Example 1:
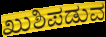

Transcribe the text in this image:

ಖುಶಿಪಡುವ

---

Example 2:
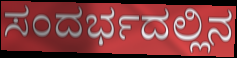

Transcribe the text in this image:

ಸಂದರ್ಭದಲ್ಲಿನ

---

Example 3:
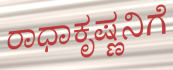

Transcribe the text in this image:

ರಾಧಾಕೃಷ್ಣನಿಗೆ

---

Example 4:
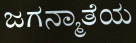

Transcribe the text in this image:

ಜಗನ್ಮಾತೆಯ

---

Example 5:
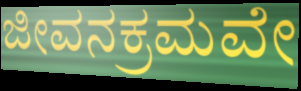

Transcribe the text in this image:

ಜೀವನಕ್ರಮವೇ